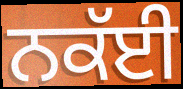
ਨਕੱਈ